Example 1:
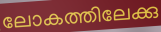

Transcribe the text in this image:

ലോകത്തിലേക്കു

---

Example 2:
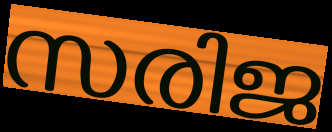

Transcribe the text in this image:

സരിജ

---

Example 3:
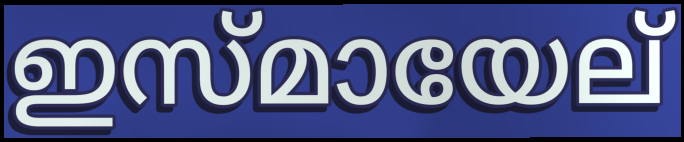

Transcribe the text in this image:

ഇസ്മായേല്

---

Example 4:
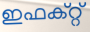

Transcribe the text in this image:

ഇഫക്റ്റ്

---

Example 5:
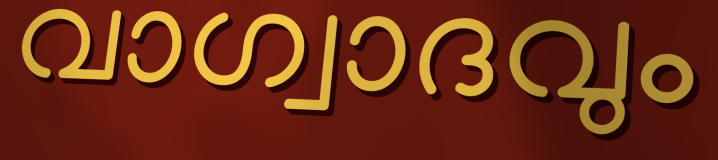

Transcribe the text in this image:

വാഗ്വാദവും